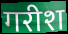
गरीश